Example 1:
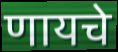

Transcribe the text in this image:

णायचे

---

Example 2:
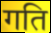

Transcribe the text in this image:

गति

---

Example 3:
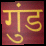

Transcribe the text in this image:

गुंड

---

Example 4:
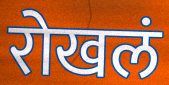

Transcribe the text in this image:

रोखलं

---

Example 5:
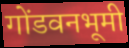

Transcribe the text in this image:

गोंडवनभूमी